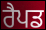
ਰੈਪਡ